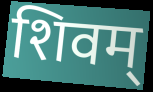
शिवम्